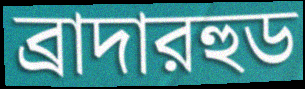
ব্রাদারহুড